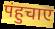
पंहुचाए